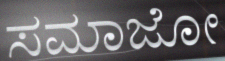
ಸಮಾಜೋ